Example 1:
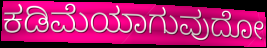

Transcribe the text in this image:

ಕಡಿಮೆಯಾಗುವುದೋ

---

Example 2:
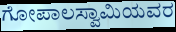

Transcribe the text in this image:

ಗೋಪಾಲಸ್ವಾಮಿಯವರ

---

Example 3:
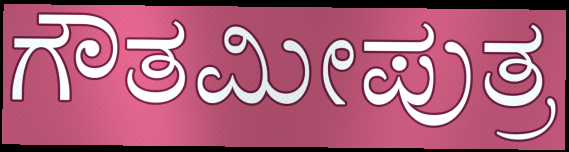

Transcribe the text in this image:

ಗೌತಮೀಪುತ್ರ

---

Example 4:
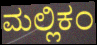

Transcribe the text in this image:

ಮಲ್ಲಿಕಂ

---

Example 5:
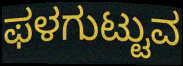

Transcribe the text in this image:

ಫಳಗುಟ್ಟುವ